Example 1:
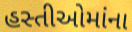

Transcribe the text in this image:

હસ્તીઓમાંના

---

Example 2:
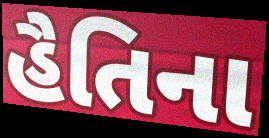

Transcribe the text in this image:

હૈતિના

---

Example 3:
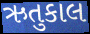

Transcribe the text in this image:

ઋતુકાલ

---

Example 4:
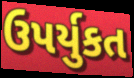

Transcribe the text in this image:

ઉપર્યુકત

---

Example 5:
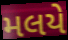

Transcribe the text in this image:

મલયે